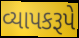
વ્યાપકરૂપે